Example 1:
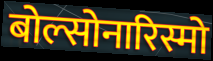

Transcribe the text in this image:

बोल्सोनारिस्मो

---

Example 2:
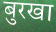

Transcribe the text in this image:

बुरखा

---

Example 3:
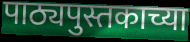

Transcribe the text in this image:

पाठ्यपुस्तकाच्या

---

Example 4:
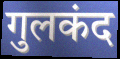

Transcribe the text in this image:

गुलकंद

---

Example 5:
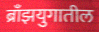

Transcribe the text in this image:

ब्राँझयुगातील